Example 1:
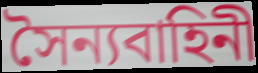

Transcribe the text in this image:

সৈন্যবাহিনী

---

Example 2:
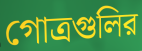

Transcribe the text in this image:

গোত্রগুলির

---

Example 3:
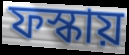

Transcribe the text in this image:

ফস্কায়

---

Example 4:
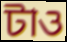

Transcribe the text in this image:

টাও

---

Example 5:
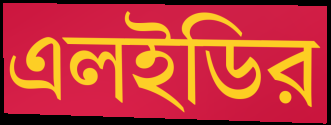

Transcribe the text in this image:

এলইডির